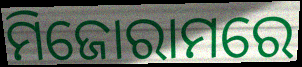
ମିଜୋରାମରେ